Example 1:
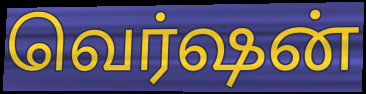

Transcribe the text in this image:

வெர்ஷன்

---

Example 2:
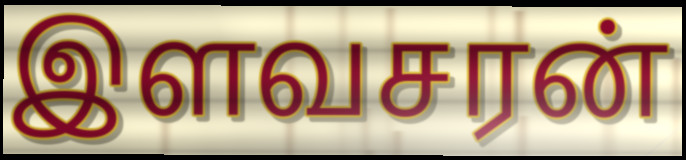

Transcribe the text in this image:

இளவசரன்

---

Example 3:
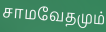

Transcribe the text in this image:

சாமவேதமும்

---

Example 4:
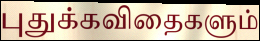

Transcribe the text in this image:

புதுக்கவிதைகளும்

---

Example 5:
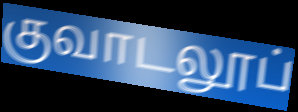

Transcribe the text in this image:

குவாடலூப்